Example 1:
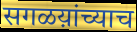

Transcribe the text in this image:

सगळय़ांच्याच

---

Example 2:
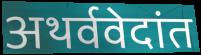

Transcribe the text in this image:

अथर्ववेदांत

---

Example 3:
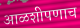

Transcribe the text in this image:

आळशीपणाच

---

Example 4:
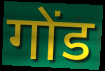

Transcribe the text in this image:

गोंड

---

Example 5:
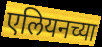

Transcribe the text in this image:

एलियनच्या